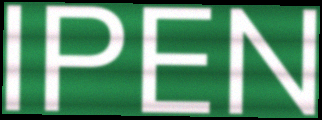
IPEN